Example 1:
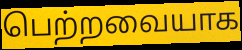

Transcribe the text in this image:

பெற்றவையாக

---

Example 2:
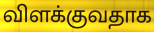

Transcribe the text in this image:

விளக்குவதாக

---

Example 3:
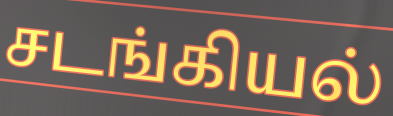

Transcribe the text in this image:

சடங்கியல்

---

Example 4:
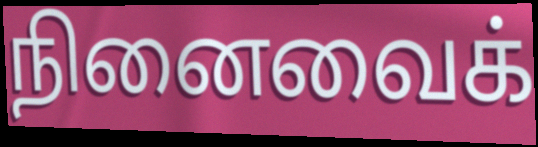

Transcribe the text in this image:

நினைவைக்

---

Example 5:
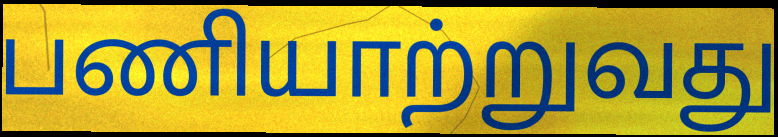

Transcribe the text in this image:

பணியாற்றுவது